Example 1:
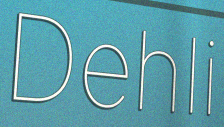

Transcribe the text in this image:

Dehli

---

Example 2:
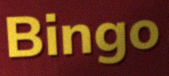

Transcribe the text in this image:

Bingo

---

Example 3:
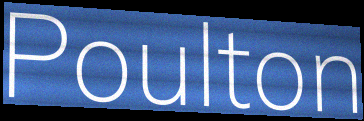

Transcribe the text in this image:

Poulton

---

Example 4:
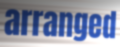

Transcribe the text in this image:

arranged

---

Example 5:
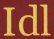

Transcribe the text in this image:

Idl